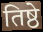
तिष्ठे